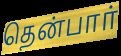
தென்பார்